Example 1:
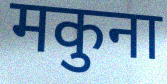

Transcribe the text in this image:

मकुना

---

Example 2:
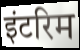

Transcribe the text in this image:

इंटरिम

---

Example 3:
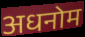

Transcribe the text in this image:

अधनोम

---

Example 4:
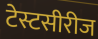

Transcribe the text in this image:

टेस्टसीरीज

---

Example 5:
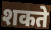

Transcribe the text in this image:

शकते